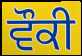
ਵੌਕੀ